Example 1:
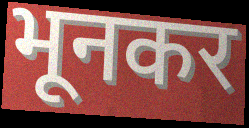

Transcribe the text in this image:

भूनकर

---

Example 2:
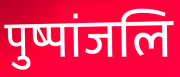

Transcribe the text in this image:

पुष्पांजलि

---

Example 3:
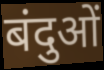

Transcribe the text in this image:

बंदुओं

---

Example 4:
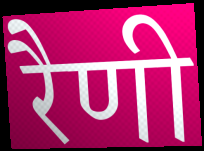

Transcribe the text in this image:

रैणी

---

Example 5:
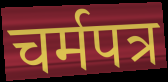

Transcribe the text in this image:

चर्मपत्र